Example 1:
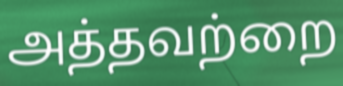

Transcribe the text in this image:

அத்தவற்றை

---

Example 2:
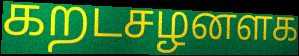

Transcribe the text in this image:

கறடசழனளக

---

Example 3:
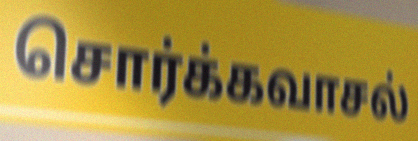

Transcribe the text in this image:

சொர்க்கவாசல்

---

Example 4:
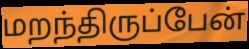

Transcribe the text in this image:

மறந்திருப்பேன்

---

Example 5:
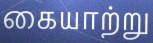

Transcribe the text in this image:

கையாற்று